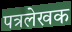
पत्रलेखक